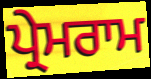
ਪ੍ਰੇਮਰਾਮ